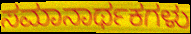
ಸಮಾನಾರ್ಥಕಗಳು